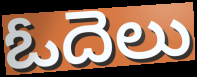
ఓదెలు